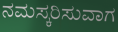
ನಮಸ್ಕರಿಸುವಾಗ